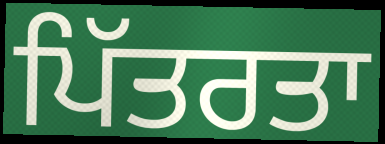
ਪਿੱਤਰਤਾ